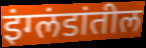
इंग्लंडांतील